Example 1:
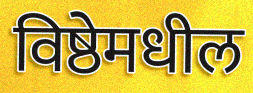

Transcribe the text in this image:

विष्ठेमधील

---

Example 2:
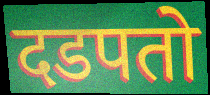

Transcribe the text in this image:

दडपतो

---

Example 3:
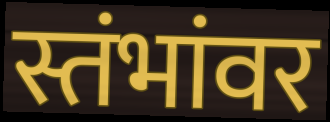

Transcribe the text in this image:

स्तंभांवर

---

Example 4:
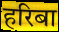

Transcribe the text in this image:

हरिबा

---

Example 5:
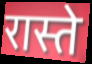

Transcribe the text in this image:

रास्ते